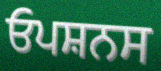
ਓਪਸ਼ਨਸ